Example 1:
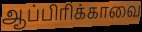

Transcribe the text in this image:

ஆப்பிரிக்காவை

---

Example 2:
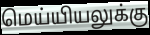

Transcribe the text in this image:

மெய்யியலுக்கு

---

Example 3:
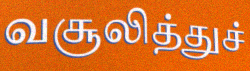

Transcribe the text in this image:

வசூலித்துச்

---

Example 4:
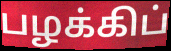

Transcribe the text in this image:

பழக்கிப்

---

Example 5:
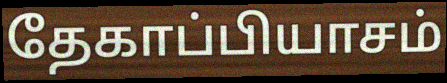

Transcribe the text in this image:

தேகாப்பியாசம்